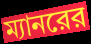
ম্যানরের